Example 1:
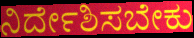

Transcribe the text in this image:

ನಿರ್ದೇಶಿಸಬೇಕು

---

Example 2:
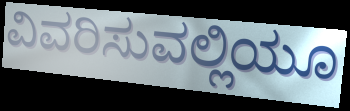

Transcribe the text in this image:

ವಿವರಿಸುವಲ್ಲಿಯೂ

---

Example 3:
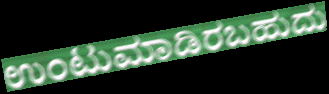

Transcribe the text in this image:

ಉಂಟುಮಾಡಿರಬಹುದು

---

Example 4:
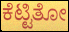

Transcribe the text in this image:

ಕೆಟ್ಟಿತೋ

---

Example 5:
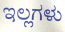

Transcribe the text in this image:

ಇಲ್ಲಗಳು